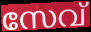
സേവ്